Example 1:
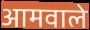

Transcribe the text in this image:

आमवाले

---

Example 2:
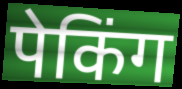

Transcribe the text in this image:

पेकिंग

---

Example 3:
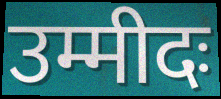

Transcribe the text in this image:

उम्मीदः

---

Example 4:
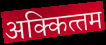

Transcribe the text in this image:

अक्‍कित्‍तम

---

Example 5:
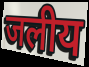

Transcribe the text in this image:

जलीय